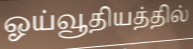
ஓய்வூதியத்தில்